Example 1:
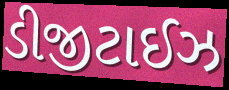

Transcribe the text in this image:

ડીજીટાઈઝ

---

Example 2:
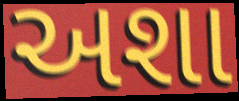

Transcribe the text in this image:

અશા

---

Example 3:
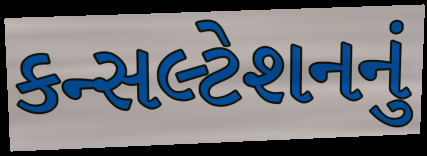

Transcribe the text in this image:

કન્સલ્ટેશનનું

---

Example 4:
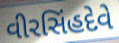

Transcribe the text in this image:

વીરસિંહદેવે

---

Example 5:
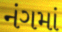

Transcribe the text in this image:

નંગમાં